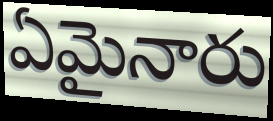
ఏమైనారు